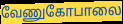
வேணுகோபாலை